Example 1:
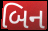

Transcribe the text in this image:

બિન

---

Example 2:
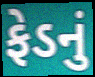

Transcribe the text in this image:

ફેડનું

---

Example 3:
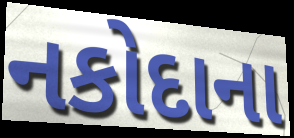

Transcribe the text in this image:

નકોદાના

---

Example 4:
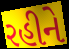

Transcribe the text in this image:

રહીને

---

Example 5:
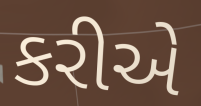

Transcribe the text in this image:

કરીએ